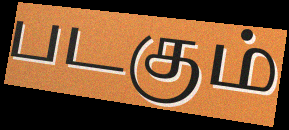
படகும்